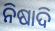
ନିଷାଦି